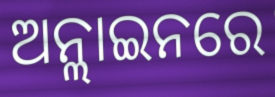
ଅନ୍ଲାଇନରେ